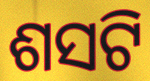
ଶସଟି